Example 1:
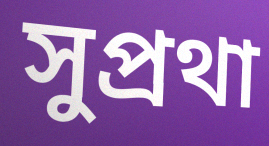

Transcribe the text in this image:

সুপ্রথা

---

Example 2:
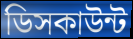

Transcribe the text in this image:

ডিসকাউন্ট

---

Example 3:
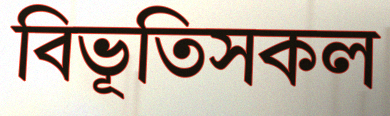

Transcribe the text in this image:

বিভূতিসকল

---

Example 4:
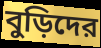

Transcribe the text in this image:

বুড়িদের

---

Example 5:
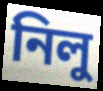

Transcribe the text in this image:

নিলু